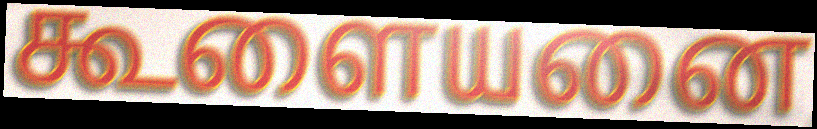
கூளையனை